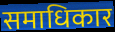
समाधिकार